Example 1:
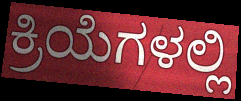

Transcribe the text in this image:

ಕ್ರಿಯೆಗಳಲ್ಲಿ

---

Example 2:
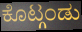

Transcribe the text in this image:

ಕೊಟ್ಗಂಡು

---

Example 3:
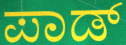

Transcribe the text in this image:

ಪಾಡ್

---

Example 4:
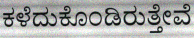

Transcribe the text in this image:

ಕಳೆದುಕೊಂಡಿರುತ್ತೇವೆ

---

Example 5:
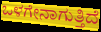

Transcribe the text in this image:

ಒಳಗೇನಾಗುತ್ತಿದೆ